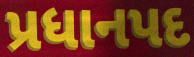
પ્રધાનપદ